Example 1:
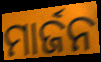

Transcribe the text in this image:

ମାର୍ଜନ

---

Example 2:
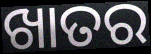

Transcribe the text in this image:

ଖାତର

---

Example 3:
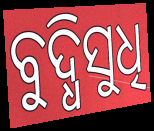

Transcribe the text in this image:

ବୁଦ୍ଧିସୁଧି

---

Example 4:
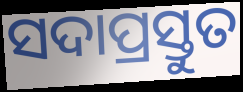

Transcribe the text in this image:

ସଦାପ୍ରସ୍ତୁତ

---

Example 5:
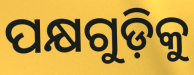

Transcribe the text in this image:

ପକ୍ଷଗୁଡ଼ିକୁ